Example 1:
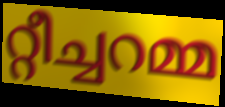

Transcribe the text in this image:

റ്റീച്ചറമ്മ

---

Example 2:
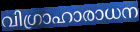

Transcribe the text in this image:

വിഗ്രാഹാരാധന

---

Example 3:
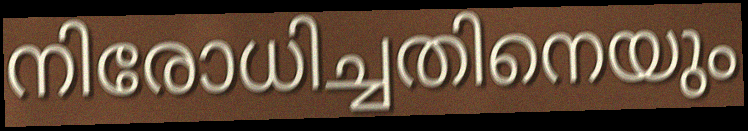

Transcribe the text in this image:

നിരോധിച്ചതിനെയും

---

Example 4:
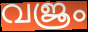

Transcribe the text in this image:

വജ്രം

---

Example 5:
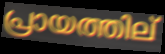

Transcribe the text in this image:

പ്രായത്തില്